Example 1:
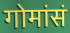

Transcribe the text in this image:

गोमांसं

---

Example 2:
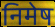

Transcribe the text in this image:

निमेष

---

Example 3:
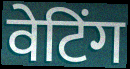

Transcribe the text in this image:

वेटिंग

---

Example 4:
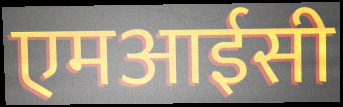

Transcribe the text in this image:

एमआईसी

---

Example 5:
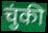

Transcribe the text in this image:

चुंकी